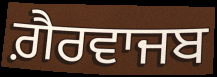
ਗ਼ੈਰਵਾਜਬ